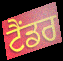
ਟੈਂਡਰ